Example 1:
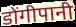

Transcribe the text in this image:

डोंगीपानी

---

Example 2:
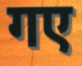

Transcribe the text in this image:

गए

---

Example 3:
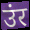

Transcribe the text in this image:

उंर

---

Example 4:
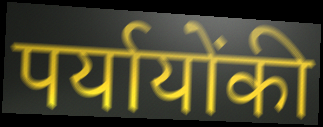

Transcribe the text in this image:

पर्यायोंकी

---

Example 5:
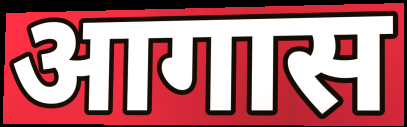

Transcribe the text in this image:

आगास